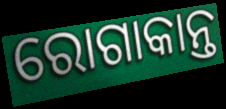
ରୋଗାକାନ୍ତ